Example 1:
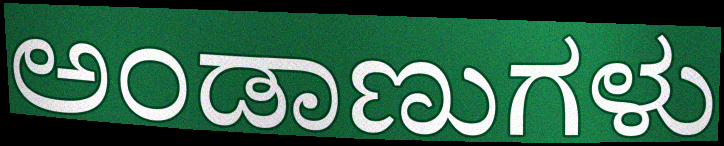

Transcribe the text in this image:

ಅಂಡಾಣುಗಳು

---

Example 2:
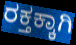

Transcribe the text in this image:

ರಕ್ತಕ್ಕಾಗಿ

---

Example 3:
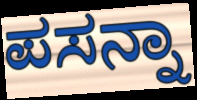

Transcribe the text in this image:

ಪಸನ್ನಾ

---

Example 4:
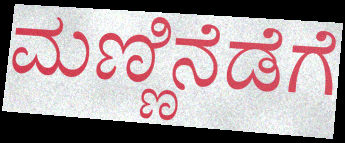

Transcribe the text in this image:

ಮಣ್ಣಿನೆಡೆಗೆ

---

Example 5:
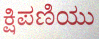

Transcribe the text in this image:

ಕ್ಷಿಪಣಿಯು